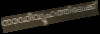
നാഡീവ്യൂഹത്തിലേക്ക്